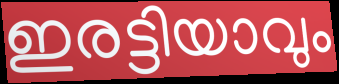
ഇരട്ടിയാവും